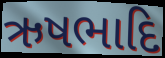
ઋષભાદિ